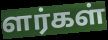
ளர்கள்